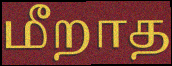
மீறாத